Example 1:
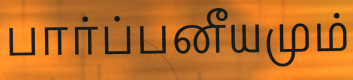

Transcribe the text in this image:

பார்ப்பனீயமும்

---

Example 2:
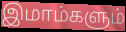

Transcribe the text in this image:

இமாம்களும்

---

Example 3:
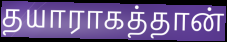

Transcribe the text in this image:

தயாராகத்தான்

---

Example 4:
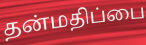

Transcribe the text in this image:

தன்மதிப்பை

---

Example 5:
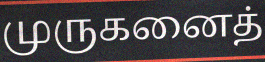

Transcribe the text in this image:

முருகனைத்